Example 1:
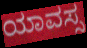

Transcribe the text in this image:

ಯಾವಸ್ಸ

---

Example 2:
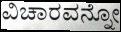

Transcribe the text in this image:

ವಿಚಾರವನ್ನೋ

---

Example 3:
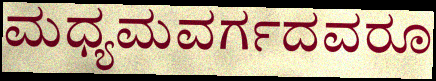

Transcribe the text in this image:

ಮಧ್ಯಮವರ್ಗದವರೂ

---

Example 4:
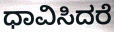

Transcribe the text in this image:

ಧಾವಿಸಿದರೆ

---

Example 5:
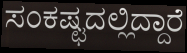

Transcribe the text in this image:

ಸಂಕಷ್ಟದಲ್ಲಿದ್ದಾರೆ